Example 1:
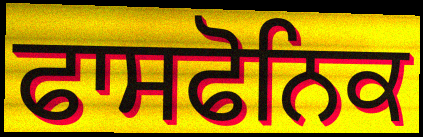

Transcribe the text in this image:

ਫਾਸਫੋਨਿਕ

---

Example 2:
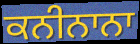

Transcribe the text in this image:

ਕਨੀਨਾਨਾ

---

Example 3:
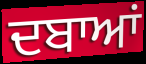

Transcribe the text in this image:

ਦਬਾਆਂ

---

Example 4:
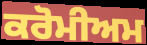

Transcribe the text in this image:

ਕਰੋਮੀਅਮ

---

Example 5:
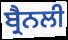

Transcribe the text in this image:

ਬ੍ਰੈਨਲੀ